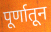
पूर्णातून